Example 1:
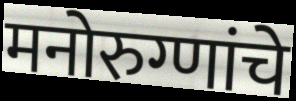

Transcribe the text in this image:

मनोरुग्णांचे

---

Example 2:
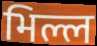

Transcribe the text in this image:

भिल्ल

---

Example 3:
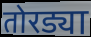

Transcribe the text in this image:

तोरड्या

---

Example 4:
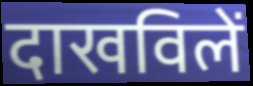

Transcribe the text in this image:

दाखविलें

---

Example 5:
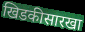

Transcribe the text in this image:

खिडकीसारखा